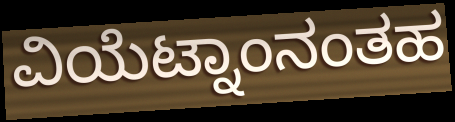
ವಿಯೆಟ್ನಾಂನಂತಹ